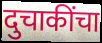
दुचाकींचा